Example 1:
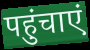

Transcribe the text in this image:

पहुंचाएं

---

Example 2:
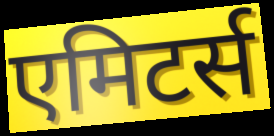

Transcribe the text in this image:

एमिटर्स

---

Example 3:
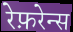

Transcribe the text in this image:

रेफ़रेन्स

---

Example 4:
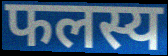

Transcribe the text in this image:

फलस्य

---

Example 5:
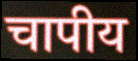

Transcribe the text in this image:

चापीय